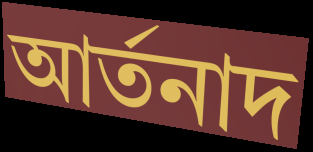
আর্তনাদ